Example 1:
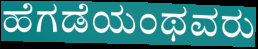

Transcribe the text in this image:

ಹೆಗಡೆಯಂಥವರು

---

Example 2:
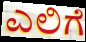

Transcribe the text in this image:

ಎಲಿಗೆ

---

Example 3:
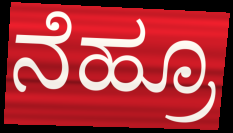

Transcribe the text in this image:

ನೆಹ್ರೂ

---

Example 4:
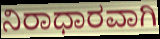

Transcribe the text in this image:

ನಿರಾಧಾರವಾಗಿ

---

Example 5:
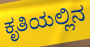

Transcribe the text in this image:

ಕೃತಿಯಲ್ಲಿನ